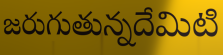
జరుగుతున్నదేమిటి